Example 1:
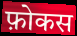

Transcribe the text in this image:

फ़ोकस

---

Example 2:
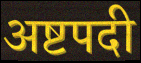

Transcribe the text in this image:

अष्टपदी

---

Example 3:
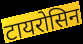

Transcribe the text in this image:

टायरोसिन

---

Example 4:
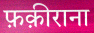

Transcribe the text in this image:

फ़क़ीराना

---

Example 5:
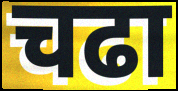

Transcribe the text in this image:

चढा